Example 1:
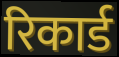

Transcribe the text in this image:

रिकार्ड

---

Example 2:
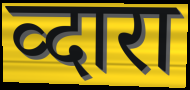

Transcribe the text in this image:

व्दारा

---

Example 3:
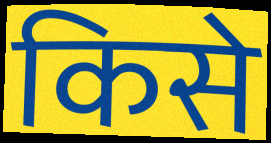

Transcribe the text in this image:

किसे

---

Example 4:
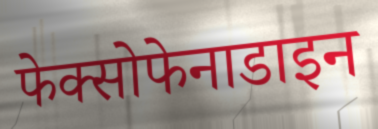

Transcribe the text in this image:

फेक्सोफेनाडाइन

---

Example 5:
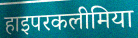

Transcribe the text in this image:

हाइपरकलीमिया